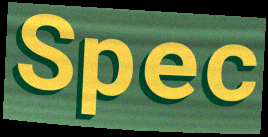
Spec